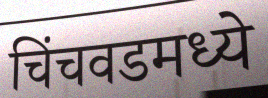
चिंचवडमध्ये